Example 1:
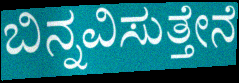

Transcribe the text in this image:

ಬಿನ್ನವಿಸುತ್ತೇನೆ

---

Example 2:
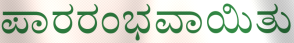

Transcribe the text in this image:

ಪಾರರಂಭವಾಯಿತು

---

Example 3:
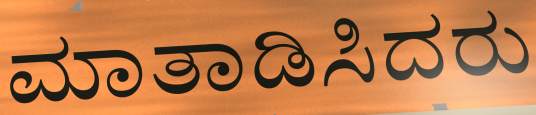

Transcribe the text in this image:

ಮಾತಾಡಿಸಿದರು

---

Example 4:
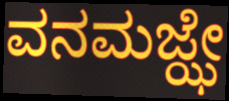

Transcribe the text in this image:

ವನಮಜ್ಝೇ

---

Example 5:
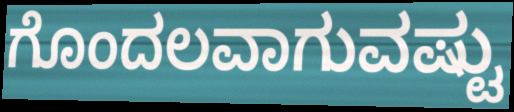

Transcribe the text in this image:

ಗೊಂದಲವಾಗುವಷ್ಟು